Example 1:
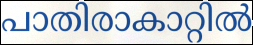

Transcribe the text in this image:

പാതിരാകാറ്റിൽ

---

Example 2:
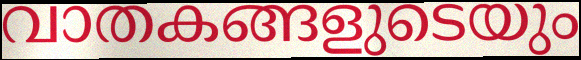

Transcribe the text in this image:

വാതകങ്ങളുടെയും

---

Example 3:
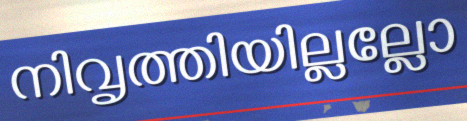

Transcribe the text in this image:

നിവൃത്തിയില്ലല്ലോ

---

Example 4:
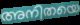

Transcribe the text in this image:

അനിതയെ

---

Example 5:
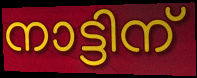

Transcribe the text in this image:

നാട്ടിന്